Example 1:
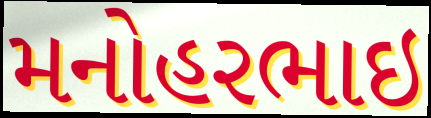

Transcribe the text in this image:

મનોહરભાઇ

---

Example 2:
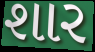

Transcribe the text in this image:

શાર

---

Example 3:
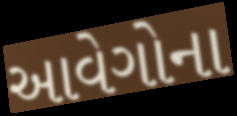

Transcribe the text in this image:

આવેગોના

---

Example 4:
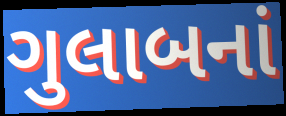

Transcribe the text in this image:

ગુલાબનાં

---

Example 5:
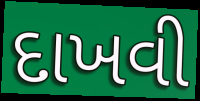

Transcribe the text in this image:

દાખવી